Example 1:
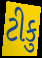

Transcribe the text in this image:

ટીકુ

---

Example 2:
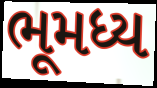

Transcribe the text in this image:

ભૂમધ્ય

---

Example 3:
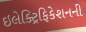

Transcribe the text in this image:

ઇલેક્ટ્રિફિકેશનની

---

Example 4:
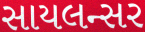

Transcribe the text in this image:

સાયલન્સર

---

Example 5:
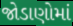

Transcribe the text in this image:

જોડાણોમાં